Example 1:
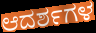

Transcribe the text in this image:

ಆದರ್ಶಗಳ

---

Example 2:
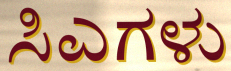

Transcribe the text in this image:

ಸಿಎಗಳು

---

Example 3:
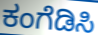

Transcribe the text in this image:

ಕಂಗೆಡಿಸಿ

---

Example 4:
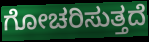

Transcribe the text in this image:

ಗೋಚರಿಸುತ್ತದೆ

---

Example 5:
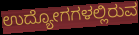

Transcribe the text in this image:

ಉದ್ಯೋಗಗಳಲ್ಲಿರುವ